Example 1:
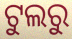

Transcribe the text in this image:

ଟୁଲରୁ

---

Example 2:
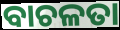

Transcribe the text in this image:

ବାଚଳତା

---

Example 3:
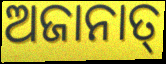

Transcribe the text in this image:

ଅଜାନାତ୍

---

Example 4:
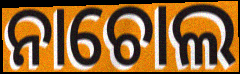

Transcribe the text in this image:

ନାଚୋଲ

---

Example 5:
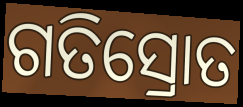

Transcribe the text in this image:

ଗତିସ୍ରୋତ